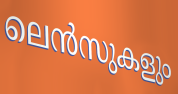
ലെൻസുകളും